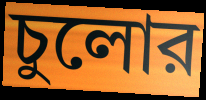
চুলোর